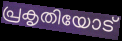
പ്രകൃതിയോട്